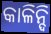
କାଳିନ୍ଦି